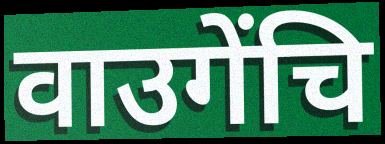
वाउगेंचि